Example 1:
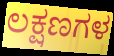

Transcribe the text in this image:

ಲಕ್ಷಣಗಳ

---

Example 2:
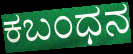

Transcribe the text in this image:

ಕಬಂಧನ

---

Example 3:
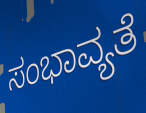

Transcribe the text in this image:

ಸಂಭಾವ್ಯತೆ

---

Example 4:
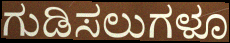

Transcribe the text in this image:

ಗುಡಿಸಲುಗಳೂ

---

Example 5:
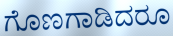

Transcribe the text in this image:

ಗೊಣಗಾಡಿದರೂ